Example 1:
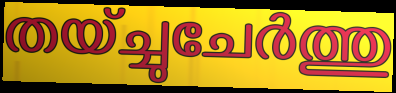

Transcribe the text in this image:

തയ്ച്ചുചേർത്തു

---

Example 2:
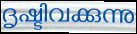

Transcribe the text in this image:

ദൃഷ്ടിവക്കുന്നു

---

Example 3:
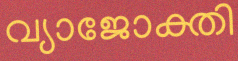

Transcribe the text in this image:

വ്യാജോക്തി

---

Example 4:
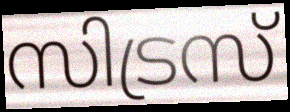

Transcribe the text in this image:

സിട്രസ്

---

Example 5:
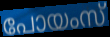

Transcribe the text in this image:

പോയംസ്